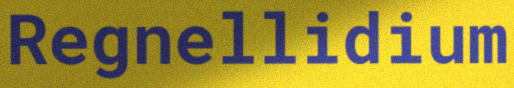
Regnellidium